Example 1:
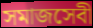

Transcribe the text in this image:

সমাজসেবী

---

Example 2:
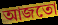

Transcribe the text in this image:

আজতো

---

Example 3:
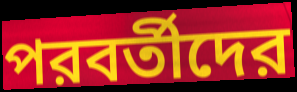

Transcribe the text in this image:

পরবর্তীদের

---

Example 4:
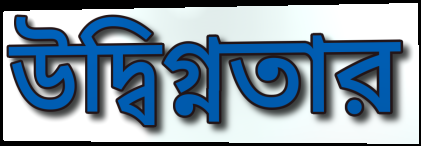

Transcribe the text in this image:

উদ্বিগ্নতার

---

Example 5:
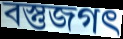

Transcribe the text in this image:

বস্তুজগৎ